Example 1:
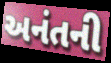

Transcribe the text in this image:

અનંતની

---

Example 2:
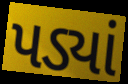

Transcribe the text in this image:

પડ્યાં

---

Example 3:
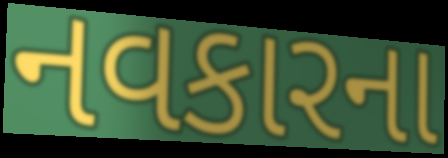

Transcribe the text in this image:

નવકારના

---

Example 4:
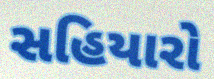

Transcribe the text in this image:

સહિયારો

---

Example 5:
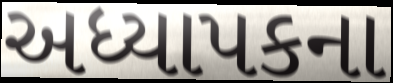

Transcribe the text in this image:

અધ્યાપકના